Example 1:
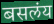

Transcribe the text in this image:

बसलंय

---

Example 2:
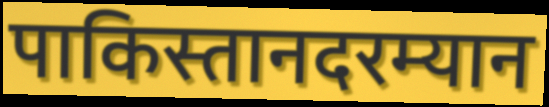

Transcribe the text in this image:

पाकिस्तानदरम्यान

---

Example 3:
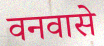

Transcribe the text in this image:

वनवासे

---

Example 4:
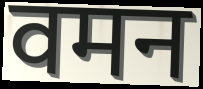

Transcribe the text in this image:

वमन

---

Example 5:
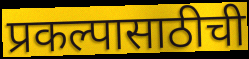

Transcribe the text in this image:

प्रकल्पासाठीची